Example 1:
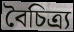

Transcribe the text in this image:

বৈচিত্র্য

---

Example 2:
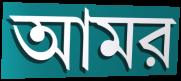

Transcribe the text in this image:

আমর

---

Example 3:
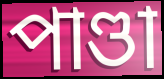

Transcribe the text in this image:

পাণ্ডা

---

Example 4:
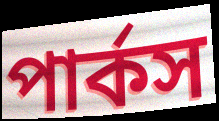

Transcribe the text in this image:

পার্কস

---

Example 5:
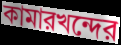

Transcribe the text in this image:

কামারখন্দের